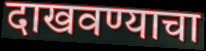
दाखवण्याचा